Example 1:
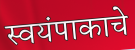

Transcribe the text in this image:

स्वयंपाकाचे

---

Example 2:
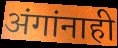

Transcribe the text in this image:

अंगांनाही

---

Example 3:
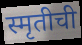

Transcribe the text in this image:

स्मृतीची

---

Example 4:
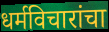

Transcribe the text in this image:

धर्मविचारांचा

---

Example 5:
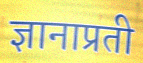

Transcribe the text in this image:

ज्ञानाप्रती